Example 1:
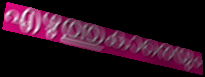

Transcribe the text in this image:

എഴുത്തുകാരെയും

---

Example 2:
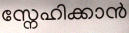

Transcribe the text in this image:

സ്നേഹിക്കാൻ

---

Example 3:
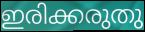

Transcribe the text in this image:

ഇരിക്കരുതു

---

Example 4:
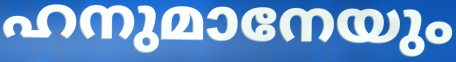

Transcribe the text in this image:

ഹനുമാനേയും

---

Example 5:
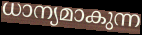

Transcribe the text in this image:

ധാന്യമാകുന്ന